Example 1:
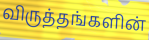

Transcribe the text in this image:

விருத்தங்களின்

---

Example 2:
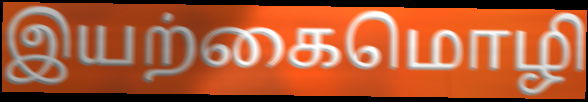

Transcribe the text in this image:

இயற்கைமொழி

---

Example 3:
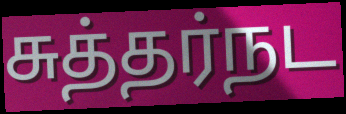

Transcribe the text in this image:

சுத்தர்நட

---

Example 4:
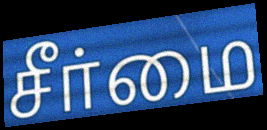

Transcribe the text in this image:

சீர்மை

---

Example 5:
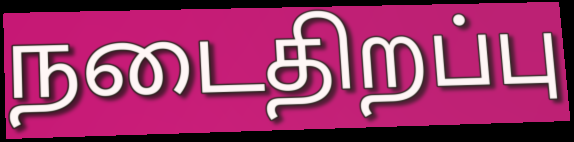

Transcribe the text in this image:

நடைதிறப்பு